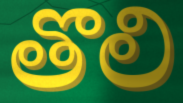
తొలి